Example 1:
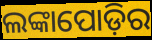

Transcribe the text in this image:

ଲଙ୍କାପୋଡ଼ିର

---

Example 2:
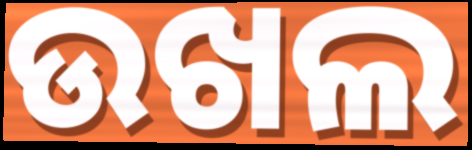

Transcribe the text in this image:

ଉଖଲ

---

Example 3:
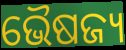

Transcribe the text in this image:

ଭୈଷଜ୍ୟ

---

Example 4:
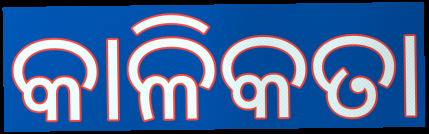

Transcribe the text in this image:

କାଳିକତା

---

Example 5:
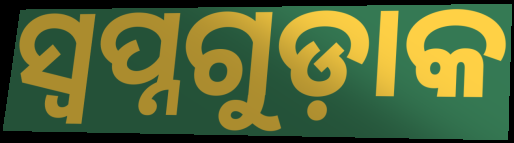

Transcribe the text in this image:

ସ୍ୱପ୍ନଗୁଡ଼ାକ